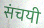
संचयी